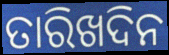
ତାରିଖଦିନ